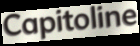
Capitoline